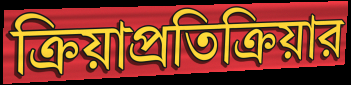
ক্রিয়াপ্রতিক্রিয়ার